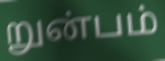
றுன்பம்